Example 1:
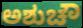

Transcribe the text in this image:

ಅಶುಚೌ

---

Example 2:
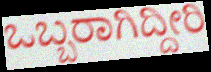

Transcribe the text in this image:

ಒಬ್ಬರಾಗಿದ್ದೀರಿ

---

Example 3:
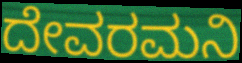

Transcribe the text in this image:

ದೇವರಮನಿ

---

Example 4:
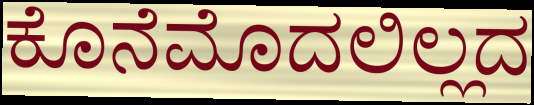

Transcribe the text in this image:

ಕೊನೆಮೊದಲಿಲ್ಲದ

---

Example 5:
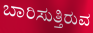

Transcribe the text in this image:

ಬಾರಿಸುತ್ತಿರುವ